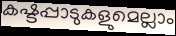
കഷ്ടപ്പാടുകളുമെല്ലാം